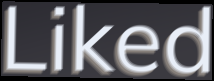
Liked